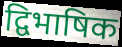
द्विभाषिक